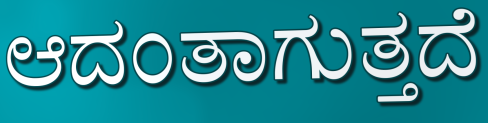
ಆದಂತಾಗುತ್ತದೆ